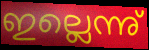
ഇല്ലെന്നു്